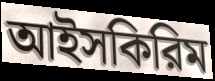
আইসকিরিম